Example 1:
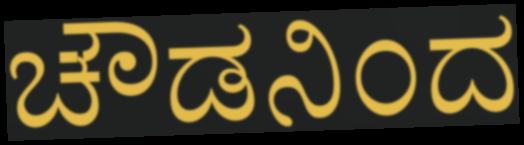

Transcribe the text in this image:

ಚೌಡನಿಂದ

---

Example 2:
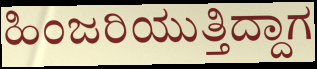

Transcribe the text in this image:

ಹಿಂಜರಿಯುತ್ತಿದ್ದಾಗ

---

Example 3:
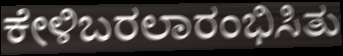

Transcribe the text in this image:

ಕೇಳಿಬರಲಾರಂಭಿಸಿತು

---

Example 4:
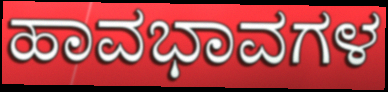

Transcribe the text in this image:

ಹಾವಭಾವಗಳ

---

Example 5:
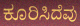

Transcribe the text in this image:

ಕೂರಿಸಿದೆವು